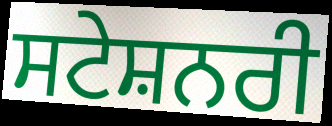
ਸਟੇਸ਼ਨਰੀ